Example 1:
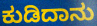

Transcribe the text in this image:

ಕುಡಿದಾನು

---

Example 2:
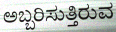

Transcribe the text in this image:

ಅಬ್ಬರಿಸುತ್ತಿರುವ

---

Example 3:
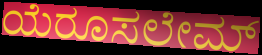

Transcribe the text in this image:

ಯೆರೂಸಲೇಮ್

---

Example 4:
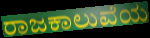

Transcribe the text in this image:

ರಾಜಕಾಲುವೆಯ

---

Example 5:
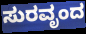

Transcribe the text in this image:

ಸುರವೃಂದ